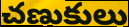
చణుకులు